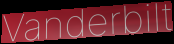
Vanderbilt